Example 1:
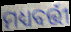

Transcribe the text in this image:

ମଧ୍ୟବର୍ତ୍ତୀ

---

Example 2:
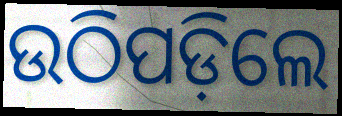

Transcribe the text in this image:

ଉଠିପଡ଼ିଲେ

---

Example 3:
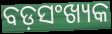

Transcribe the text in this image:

ବଡ଼ସଂଖ୍ୟକ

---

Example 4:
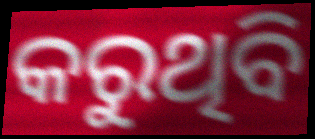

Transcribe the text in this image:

କରୁଥିବି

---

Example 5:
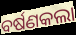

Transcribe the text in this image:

ବର୍ଷଣକଲା